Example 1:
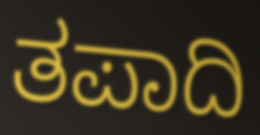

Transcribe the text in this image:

ತಪಾದಿ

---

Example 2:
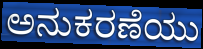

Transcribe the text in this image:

ಅನುಕರಣೆಯು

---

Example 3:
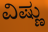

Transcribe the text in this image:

ವಿಷ್ಣು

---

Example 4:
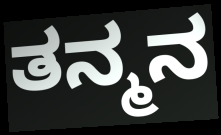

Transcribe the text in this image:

ತನ್ಮನ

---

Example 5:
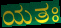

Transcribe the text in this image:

ಯತಃ